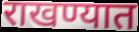
राखण्यात